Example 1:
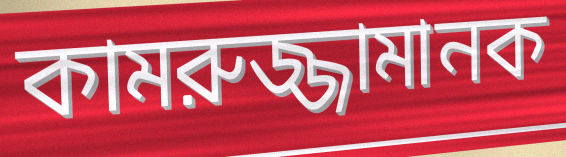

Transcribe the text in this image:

কামৰুজ্জামানক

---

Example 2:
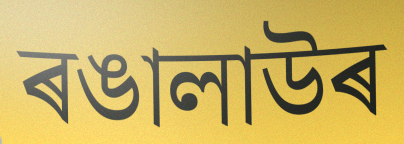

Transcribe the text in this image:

ৰঙালাউৰ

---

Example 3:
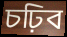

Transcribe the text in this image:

চঢ়িব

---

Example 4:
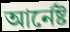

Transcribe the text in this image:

আৰ্নেষ্ট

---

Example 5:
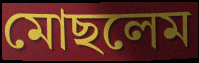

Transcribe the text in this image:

মোছলেম